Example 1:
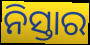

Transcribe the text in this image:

ନିସ୍ତାର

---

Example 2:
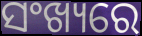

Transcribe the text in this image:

ସଂଖ୍ୟରେ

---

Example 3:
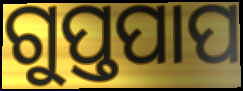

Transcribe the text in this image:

ଗୁପ୍ତପାପ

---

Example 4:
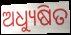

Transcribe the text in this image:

ଅଧ୍ୟୁଷିତ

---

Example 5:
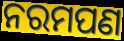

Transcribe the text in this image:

ନରମପଣ